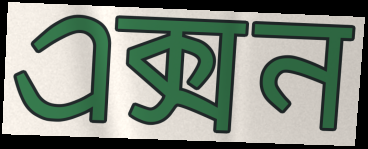
এক্সন